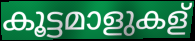
കൂട്ടമാളുകള്